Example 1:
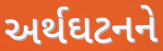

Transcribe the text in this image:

અર્થઘટનને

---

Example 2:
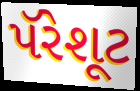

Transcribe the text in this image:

પૅરેશૂટ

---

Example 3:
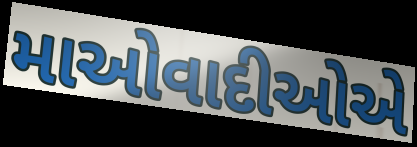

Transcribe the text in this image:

માઓવાદીઓએ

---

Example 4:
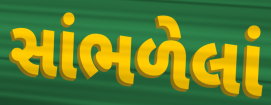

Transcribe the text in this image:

સાંભળેલાં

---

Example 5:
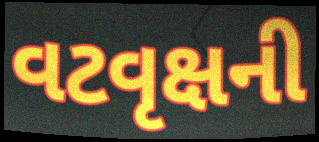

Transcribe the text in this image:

વટવૃક્ષની